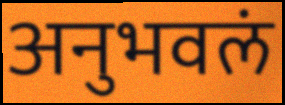
अनुभवलं